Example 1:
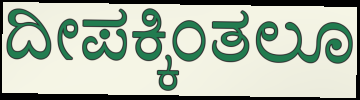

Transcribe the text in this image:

ದೀಪಕ್ಕಿಂತಲೂ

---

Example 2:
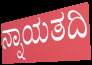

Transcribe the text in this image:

ನ್ನಾಯತದಿ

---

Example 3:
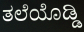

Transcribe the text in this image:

ತಲೆಯೊಡ್ಡಿ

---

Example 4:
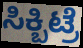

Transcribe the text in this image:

ಸಿಕ್ಬಿಟ್ರೆ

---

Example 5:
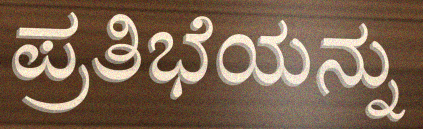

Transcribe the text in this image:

ಪ್ರತಿಭೆಯನ್ನು